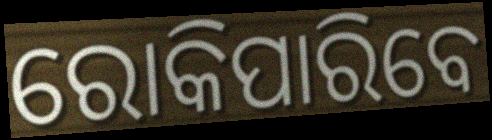
ରୋକିପାରିବେ